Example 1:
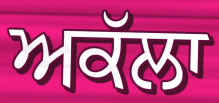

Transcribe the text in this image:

ਅਕੱਲਾ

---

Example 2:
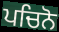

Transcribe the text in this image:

ਪਚਿਨੋ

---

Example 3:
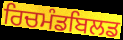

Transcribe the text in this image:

ਰਿਚਮੰਡਬਿਲਡ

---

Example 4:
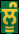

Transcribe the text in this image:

ਲੂੰ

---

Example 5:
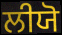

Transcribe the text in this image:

ਲੀਯੋ